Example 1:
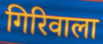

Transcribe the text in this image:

गिरिवाला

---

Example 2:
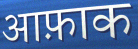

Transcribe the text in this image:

आफ़ाक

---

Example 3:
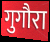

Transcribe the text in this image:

गुगौरा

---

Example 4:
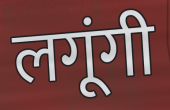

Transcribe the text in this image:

लगूंगी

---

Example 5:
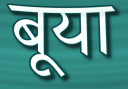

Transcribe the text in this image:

बूया